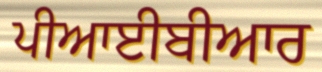
ਪੀਆਈਬੀਆਰ